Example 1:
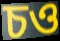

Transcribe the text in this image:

চও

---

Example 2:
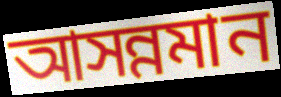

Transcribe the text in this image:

আসন্নমান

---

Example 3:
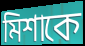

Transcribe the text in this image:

মিশাকে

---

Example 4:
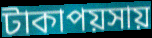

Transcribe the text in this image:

টাকাপয়সায়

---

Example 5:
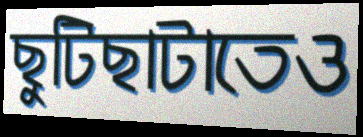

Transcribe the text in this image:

ছুটিছাটাতেও